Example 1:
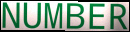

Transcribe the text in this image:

NUMBER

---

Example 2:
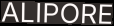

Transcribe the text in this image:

ALIPORE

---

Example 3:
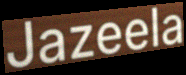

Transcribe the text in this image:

Jazeela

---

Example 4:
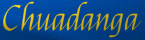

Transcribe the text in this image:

Chuadanga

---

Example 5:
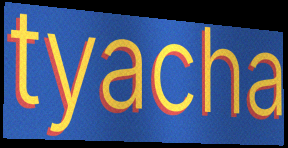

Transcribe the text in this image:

tyacha